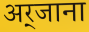
अर्जाना